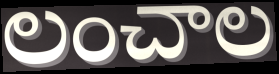
లంచాల